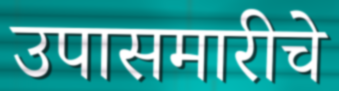
उपासमारीचे